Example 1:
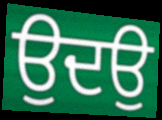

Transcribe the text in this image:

ਉਦਉ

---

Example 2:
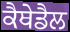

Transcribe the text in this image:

ਕੈਥੇਡੈਲ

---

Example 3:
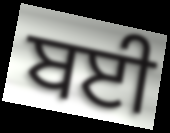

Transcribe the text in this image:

ਬਈ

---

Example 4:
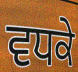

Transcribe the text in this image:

ਵਧਕੇ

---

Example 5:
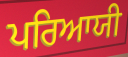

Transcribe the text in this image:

ਪਰਿਆਯੀ